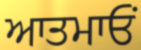
ਆਤਮਾਓਂ